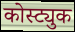
कोस्ट्युक